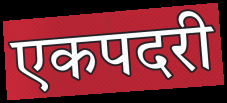
एकपदरी